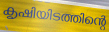
കൃഷിയിടത്തിന്റെ